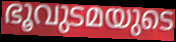
ഭൂവുടമയുടെ